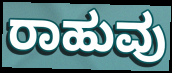
ರಾಹುವು